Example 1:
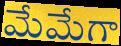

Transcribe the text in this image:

మేమేగా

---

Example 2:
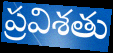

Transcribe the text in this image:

ప్రవిశతు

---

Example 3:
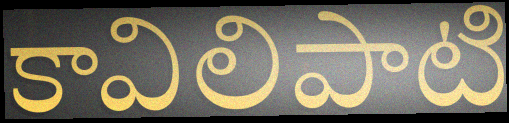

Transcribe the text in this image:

కావిలిపాటి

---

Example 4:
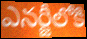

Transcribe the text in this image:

ఎనర్జీలోకి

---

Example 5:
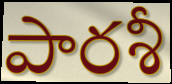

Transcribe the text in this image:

పారశీ